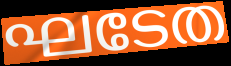
ഘടേത